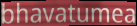
bhavatumea